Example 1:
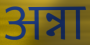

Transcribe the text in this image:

अन्ना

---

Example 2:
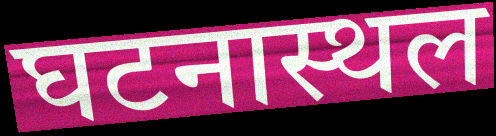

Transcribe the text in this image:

घटनास्थल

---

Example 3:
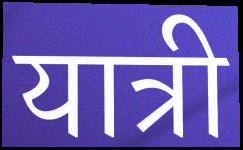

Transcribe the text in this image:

यात्री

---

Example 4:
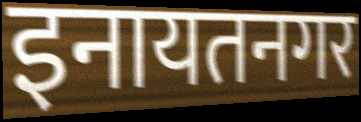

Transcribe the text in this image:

इनायतनगर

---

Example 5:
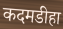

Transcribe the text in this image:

कदमडीहा